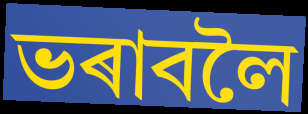
ভৰাবলৈ